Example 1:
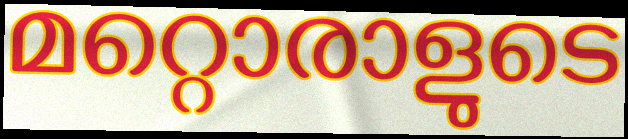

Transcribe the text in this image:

മറ്റൊരാളുടെ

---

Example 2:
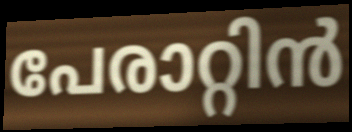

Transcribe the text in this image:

പേരാറ്റിൻ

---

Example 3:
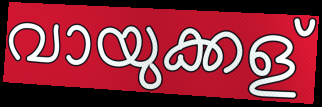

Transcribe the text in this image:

വായുക്കള്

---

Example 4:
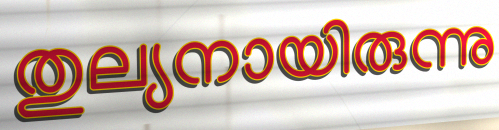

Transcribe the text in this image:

തുല്യനായിരുന്നു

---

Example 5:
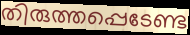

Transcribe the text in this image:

തിരുത്തപ്പെടേണ്ട